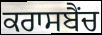
ਕਰਾਸਬੈਂਚ